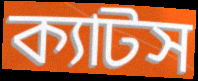
ক্যাটস